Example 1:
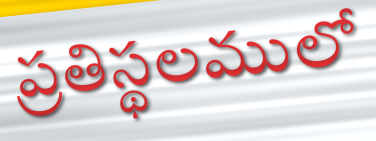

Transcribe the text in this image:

ప్రతిస్థలములో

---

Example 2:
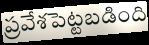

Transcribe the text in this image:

ప్రవేశపెట్టబడింది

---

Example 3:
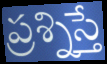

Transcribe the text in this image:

ప్రశ్నిస్తే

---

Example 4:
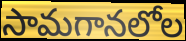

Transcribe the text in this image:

సామగానలోల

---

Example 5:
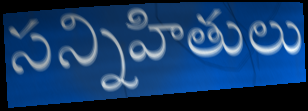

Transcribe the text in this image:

సన్నిహితులు